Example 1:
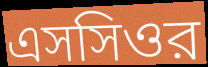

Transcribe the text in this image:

এসসিওর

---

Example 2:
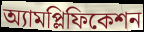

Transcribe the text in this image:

অ্যামপ্লিফিকেশন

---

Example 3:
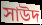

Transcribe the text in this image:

সাউদ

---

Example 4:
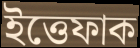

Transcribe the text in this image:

ইত্তেফাক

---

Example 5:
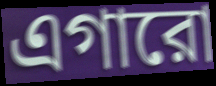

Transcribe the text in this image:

এগারো